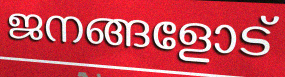
ജനങ്ങളോട്